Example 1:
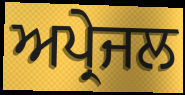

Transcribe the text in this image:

ਅਪ੍ਰੇਜਲ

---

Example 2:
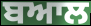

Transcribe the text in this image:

ਬਆਲ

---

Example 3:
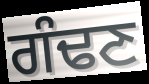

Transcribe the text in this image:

ਗੰਢਣ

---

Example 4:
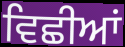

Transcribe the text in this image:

ਵਿਛੀਆਂ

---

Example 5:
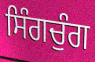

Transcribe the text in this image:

ਸਿੰਗਚੁੰਗ